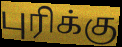
புரிக்கு